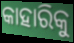
କାହାରିକୁ